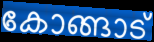
കോങ്ങാട്